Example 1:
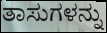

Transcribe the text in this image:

ತಾಸುಗಳನ್ನು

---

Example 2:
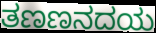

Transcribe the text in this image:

ತಣಣನದಯ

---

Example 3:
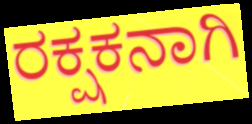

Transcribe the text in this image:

ರಕ್ಷಕನಾಗಿ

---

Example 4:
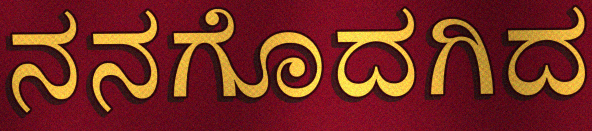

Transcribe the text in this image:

ನನಗೊದಗಿದ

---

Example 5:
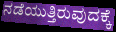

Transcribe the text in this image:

ನಡೆಯುತ್ತಿರುವುದಕ್ಕೆ